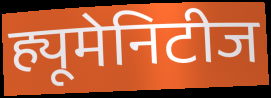
ह्यूमेनिटीज